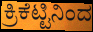
ಕ್ರಿಕೆಟ್ಟಿನಿಂದ